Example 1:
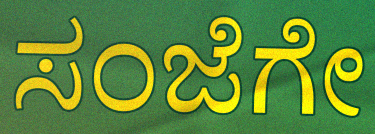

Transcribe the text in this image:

ಸಂಜೆಗೇ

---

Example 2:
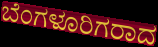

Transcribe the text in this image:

ಬೆಂಗಳೂರಿಗರಾದ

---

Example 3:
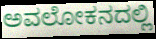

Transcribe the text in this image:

ಅವಲೋಕನದಲ್ಲಿ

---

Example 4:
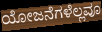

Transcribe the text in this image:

ಯೋಜನೆಗಳೆಲ್ಲವೂ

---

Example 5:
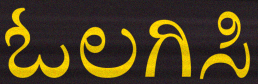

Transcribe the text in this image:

ಓಲಗಿಸಿ